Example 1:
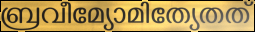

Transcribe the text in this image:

ബ്രവീമ്യോമിത്യേതത്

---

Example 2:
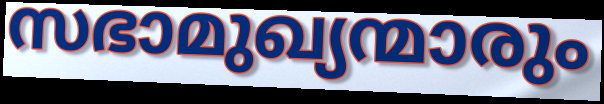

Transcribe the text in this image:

സഭാമുഖ്യന്മാരും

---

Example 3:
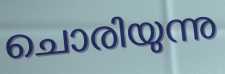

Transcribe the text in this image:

ചൊരിയുന്നു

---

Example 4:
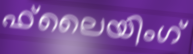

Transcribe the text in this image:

ഫ്‌ലൈയിംഗ്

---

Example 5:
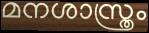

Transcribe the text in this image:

മനശാസ്ത്രം